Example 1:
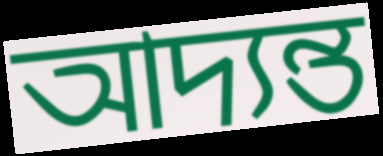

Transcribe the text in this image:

আদ্যন্ত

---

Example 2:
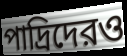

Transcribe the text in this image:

পাদ্রিদেরও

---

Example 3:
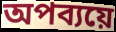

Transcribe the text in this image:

অপব্যয়ে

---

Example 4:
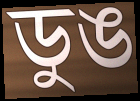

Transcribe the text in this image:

ডুঙ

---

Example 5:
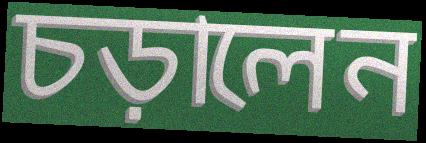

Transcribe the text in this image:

চড়ালেন